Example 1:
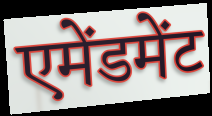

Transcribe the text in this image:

एमेंडमेंट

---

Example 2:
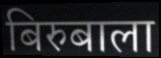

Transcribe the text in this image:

बिरुबाला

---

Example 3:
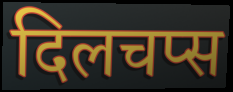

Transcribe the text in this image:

दिलचप्स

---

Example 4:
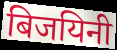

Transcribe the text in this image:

बिजयिनी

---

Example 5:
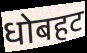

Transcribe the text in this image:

धोबहट